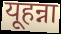
यूहन्ना